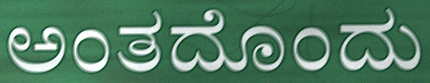
ಅಂತದೊಂದು